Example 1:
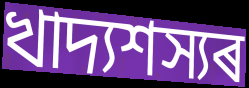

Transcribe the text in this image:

খাদ্যশস্যৰ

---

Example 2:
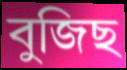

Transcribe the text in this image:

বুজিছ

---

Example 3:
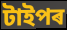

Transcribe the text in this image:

টাইপৰ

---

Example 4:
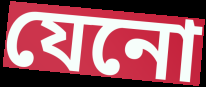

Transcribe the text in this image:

যেনো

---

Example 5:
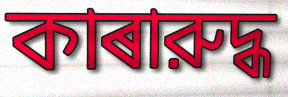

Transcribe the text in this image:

কাৰাৰুদ্ধ